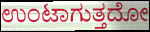
ಉಂಟಾಗುತ್ತದೋ